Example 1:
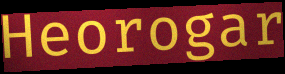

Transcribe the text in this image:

Heorogar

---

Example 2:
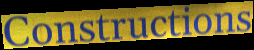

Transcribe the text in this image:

Constructions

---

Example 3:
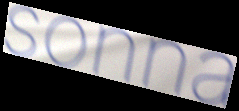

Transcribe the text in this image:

sonna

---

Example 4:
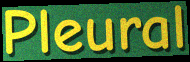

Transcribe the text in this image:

Pleural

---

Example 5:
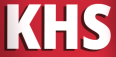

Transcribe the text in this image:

KHS